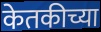
केतकीच्या